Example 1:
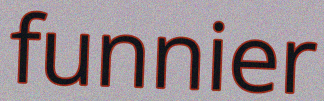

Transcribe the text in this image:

funnier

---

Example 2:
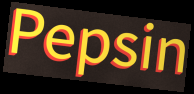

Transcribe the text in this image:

Pepsin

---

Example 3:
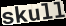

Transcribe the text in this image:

skull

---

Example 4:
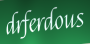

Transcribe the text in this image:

drferdous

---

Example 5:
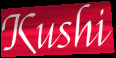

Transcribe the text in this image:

Kushi